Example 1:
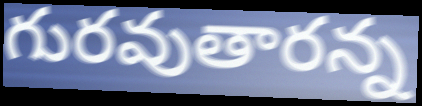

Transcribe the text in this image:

గురవుతారన్న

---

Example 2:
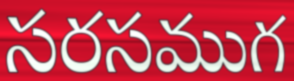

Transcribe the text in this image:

సరసముగ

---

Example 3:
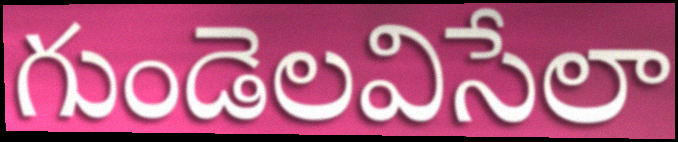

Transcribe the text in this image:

గుండెలవిసేలా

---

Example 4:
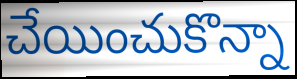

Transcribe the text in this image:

చేయించుకొన్నా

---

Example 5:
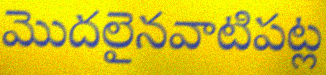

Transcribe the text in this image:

మొదలైనవాటిపట్ల